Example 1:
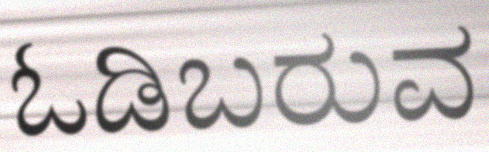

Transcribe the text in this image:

ಓಡಿಬರುವ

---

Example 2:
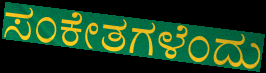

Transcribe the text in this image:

ಸಂಕೇತಗಳೆಂದು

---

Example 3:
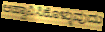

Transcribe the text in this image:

ಆಹ್ವಾನಿಸಿಕೊಳ್ಳುವುದು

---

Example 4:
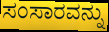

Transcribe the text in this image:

ಸಂಸಾರವನ್ನು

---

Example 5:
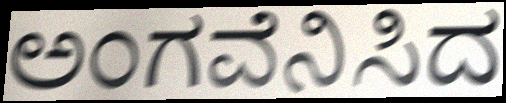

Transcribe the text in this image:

ಅಂಗವೆನಿಸಿದ